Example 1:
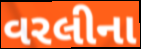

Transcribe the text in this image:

વરલીના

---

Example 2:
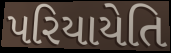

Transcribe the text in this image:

પરિયાયેતિ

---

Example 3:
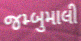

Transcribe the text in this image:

જમ્બુમાલી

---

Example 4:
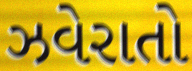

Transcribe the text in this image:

ઝવેરાતો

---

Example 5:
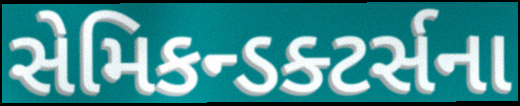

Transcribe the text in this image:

સેમિકન્ડક્ટર્સના